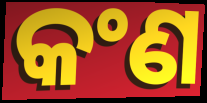
କଂଣ